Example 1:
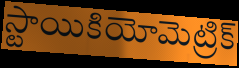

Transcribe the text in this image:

స్టాయికియోమెట్రిక్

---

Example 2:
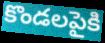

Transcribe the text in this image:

కొండలపైకి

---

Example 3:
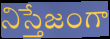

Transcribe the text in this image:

నిస్తేజంగా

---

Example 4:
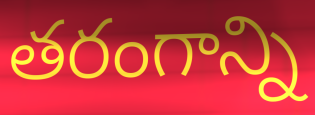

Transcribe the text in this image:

తరంగాన్ని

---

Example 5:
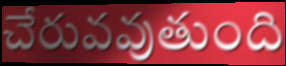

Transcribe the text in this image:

చేరువవుతుంది